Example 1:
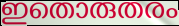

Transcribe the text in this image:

ഇതൊരുതരം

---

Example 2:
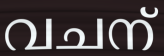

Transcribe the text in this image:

വചന്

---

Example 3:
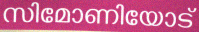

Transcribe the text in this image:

സിമോണിയോട്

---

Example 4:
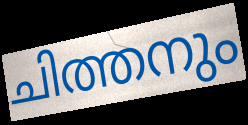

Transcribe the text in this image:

ചിത്തനും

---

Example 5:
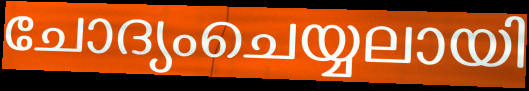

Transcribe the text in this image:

ചോദ്യംചെയ്യലായി